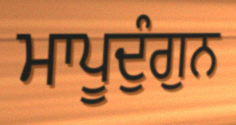
ਮਾਪੂਦੁੰਗੁਨ